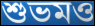
শুভমও